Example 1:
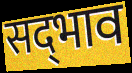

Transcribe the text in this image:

सद्‍भाव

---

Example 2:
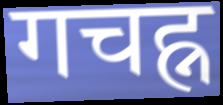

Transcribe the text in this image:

गचह्न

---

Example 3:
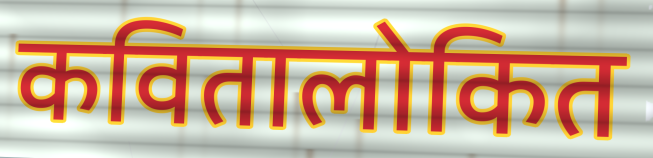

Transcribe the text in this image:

कवितालोकित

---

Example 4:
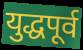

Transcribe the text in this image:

युद्धपूर्व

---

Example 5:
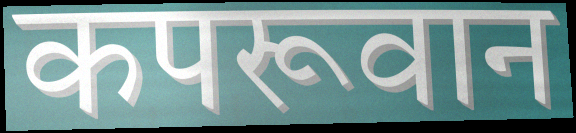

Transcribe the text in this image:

कपरूवान